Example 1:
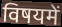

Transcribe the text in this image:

विषयमें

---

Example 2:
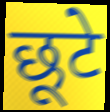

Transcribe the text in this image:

छूटे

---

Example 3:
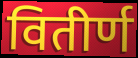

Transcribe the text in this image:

वितीर्ण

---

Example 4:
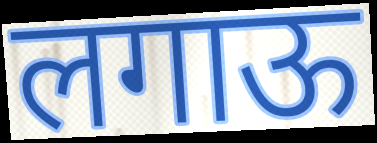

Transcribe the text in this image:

लगाऊ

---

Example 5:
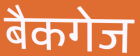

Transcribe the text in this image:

बैकगेज